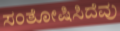
ಸಂತೋಷಿಸಿದೆವು